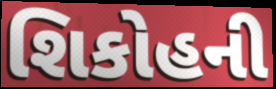
શિકોહની